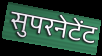
सुपरनेटेंट